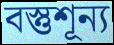
বস্তুশূন্য